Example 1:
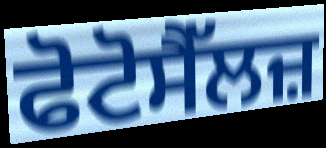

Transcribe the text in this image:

ਫੋਟੋਸੈੱਲਜ਼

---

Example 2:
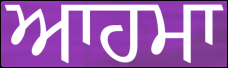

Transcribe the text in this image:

ਆਹਮਾ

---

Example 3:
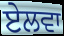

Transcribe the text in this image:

ਏਲਵਾ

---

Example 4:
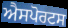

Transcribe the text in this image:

ਐਸਪੋਰਟਸ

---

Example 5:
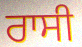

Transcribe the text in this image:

ਰਾਸੀ